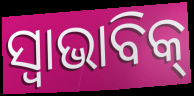
ସ୍ଵାଭାବିକ୍